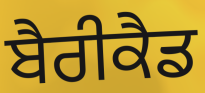
ਬੈਰੀਕੈਡ